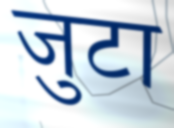
जुटा